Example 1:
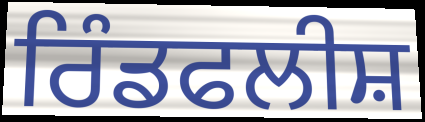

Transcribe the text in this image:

ਰਿੰਡਫਲੀਸ਼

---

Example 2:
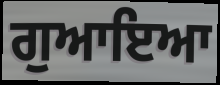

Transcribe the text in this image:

ਗੁਆਇਆ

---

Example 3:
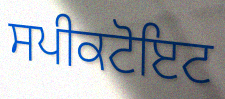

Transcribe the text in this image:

ਸਪੀਕਟੋਇਟ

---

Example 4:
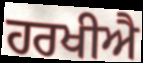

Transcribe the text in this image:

ਹਰਖੀਐ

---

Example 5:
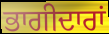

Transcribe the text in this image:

ਭਾਗੀਦਾਰਾਂ